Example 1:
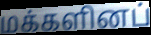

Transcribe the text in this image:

மக்களினப்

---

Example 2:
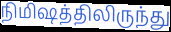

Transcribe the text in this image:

நிமிஷத்திலிருந்து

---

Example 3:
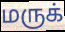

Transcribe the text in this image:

மருக்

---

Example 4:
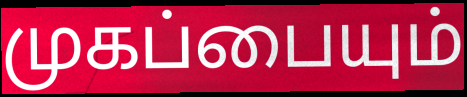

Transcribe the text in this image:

முகப்பையும்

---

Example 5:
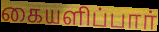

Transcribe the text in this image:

கையளிப்பார்